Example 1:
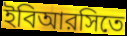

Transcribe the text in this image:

ইবিআরসিতে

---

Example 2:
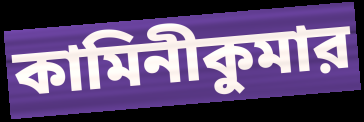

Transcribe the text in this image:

কামিনীকুমার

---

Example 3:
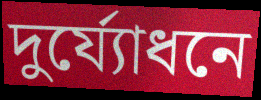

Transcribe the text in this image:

দুর্য্যোধনে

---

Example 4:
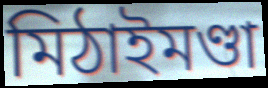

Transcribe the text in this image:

মিঠাইমণ্ডা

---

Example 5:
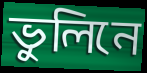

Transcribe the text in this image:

ভুলিনে